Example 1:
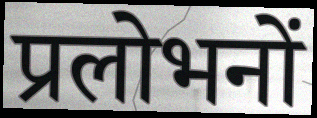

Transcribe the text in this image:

प्रलोभनों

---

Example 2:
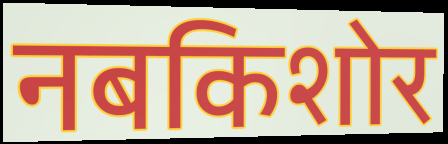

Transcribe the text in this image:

नबकिशोर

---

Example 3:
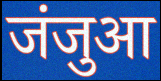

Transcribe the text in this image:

जंजुआ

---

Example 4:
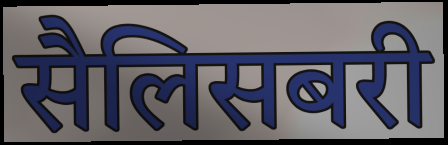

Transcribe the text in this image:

सैलिसबरी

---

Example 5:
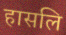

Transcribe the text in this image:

हासलि